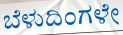
ಬೆಳುದಿಂಗಳೇ